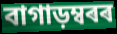
বাগাড়ম্বৰৰ